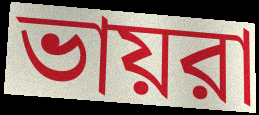
ভায়রা